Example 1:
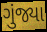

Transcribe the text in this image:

ગુંજ્યા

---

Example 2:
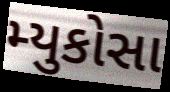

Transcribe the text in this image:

મ્યુકોસા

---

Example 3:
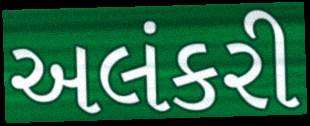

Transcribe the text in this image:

અલંકરી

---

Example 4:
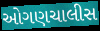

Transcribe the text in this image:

ઓગણચાલીસ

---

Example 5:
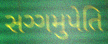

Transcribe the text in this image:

સગ્ગમુપેતિ